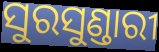
ସୁରସୁଣ୍ଡାରୀ